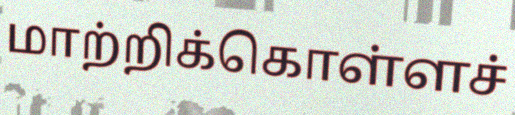
மாற்றிக்கொள்ளச்